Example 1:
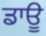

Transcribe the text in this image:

ਡਾਊ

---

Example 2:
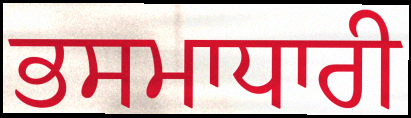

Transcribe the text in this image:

ਭਸਮਾਧਾਰੀ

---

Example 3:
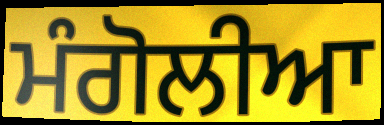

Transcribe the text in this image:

ਮੰਗੋਲੀਆ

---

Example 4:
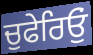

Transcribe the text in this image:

ਚੁਫੇਰਿਓੁਂ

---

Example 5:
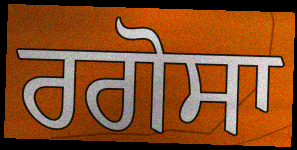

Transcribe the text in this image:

ਰਗੋਸਾ